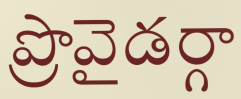
ప్రొవైడర్గా